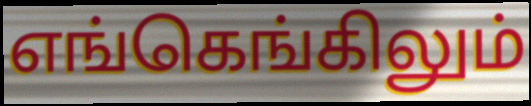
எங்கெங்கிலும்